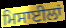
ਮਿਸਾਈਲਾਂ